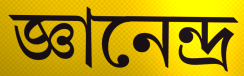
জ্ঞানেন্দ্র